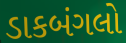
ડાકબંગલો